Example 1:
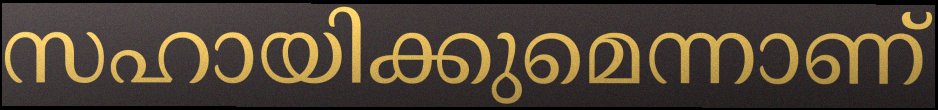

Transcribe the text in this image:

സഹായിക്കുമെന്നാണ്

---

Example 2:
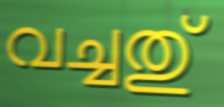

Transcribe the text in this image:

വച്ചതു്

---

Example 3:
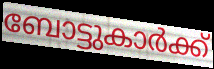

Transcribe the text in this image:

ബോട്ടുകാർക്ക്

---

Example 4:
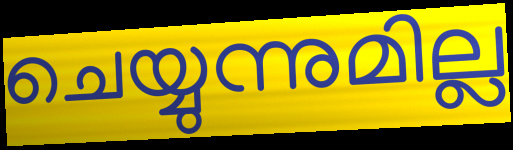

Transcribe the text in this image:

ചെയ്യുന്നുമില്ല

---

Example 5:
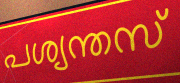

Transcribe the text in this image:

പശ്യന്തസ്